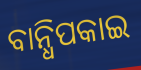
ବାନ୍ଧିପକାଇ